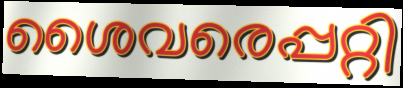
ശൈവരെപ്പറ്റി